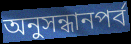
অনুসন্ধানপর্ব